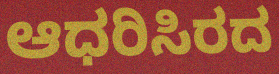
ಆಧರಿಸಿರದ